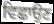
ਵਿਛਾਉਣ